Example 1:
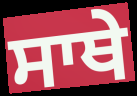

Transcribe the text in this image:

ਸਾਥੇ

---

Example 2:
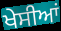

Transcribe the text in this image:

ਖੇਸੀਆਂ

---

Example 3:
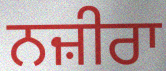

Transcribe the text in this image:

ਨਜ਼ੀਰਾ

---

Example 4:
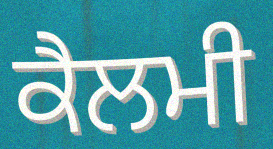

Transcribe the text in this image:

ਕੈਲਮੀ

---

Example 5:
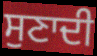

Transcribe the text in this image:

ਸੁਣਾਦੀ